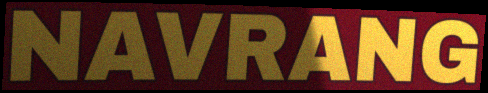
NAVRANG